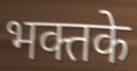
भक्तके